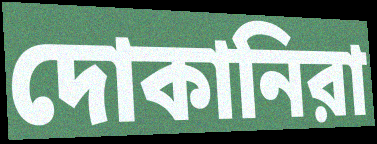
দোকানিরা